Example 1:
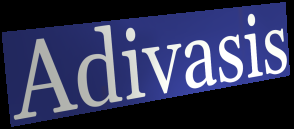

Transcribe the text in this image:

Adivasis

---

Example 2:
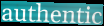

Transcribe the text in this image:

authentic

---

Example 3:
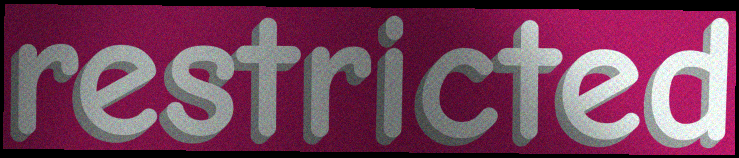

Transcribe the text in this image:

restricted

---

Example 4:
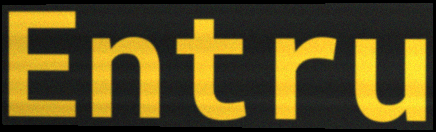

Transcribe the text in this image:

Entru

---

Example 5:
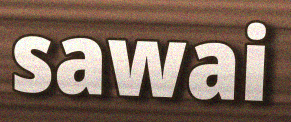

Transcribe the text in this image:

sawai